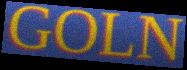
GOLN